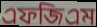
এফজিএম